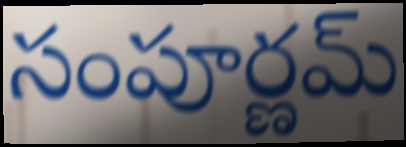
సంపూర్ణమ్